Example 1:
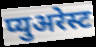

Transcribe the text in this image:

प्युअरेस्ट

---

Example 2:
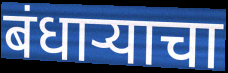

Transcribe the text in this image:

बंधार्‍याचा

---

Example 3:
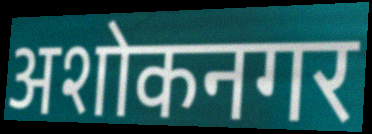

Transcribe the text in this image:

अशोकनगर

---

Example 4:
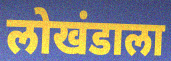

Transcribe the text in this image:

लोखंडाला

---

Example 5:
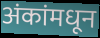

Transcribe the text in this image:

अंकांमधून